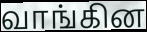
வாங்கின